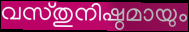
വസ്തുനിഷ്ഠമായും